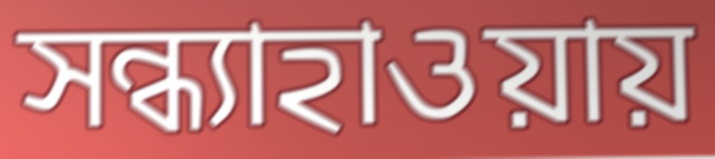
সন্ধ্যাহাওয়ায়